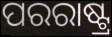
ପରରାଷ୍ଟ୍ର